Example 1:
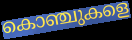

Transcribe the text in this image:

കൊഞ്ചുകളെ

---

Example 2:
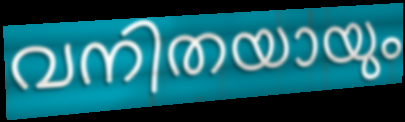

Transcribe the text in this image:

വനിതയായും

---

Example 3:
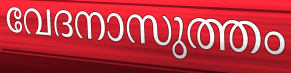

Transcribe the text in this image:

വേദനാസുത്തം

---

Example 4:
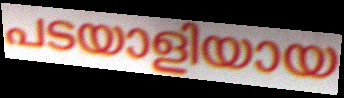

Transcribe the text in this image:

പടയാളിയായ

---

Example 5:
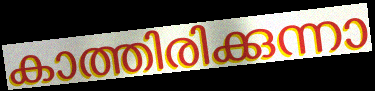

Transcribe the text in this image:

കാത്തിരിക്കുന്നാ